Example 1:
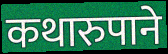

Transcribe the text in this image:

कथारुपाने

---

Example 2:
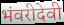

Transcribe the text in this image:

भंवरीदेवी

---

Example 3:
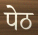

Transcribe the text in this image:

पेठ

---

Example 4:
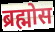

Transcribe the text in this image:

ब्रह्मोस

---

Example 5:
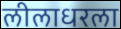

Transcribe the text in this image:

लीलाधरला